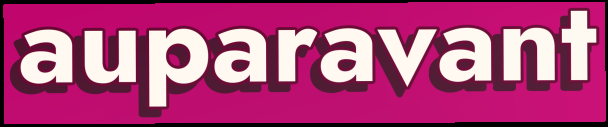
auparavant